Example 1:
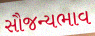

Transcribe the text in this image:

સૌજન્યભાવ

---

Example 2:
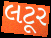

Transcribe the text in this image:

લટૂર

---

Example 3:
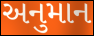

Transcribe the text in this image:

અનુમાન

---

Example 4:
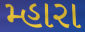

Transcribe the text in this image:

મ્હારા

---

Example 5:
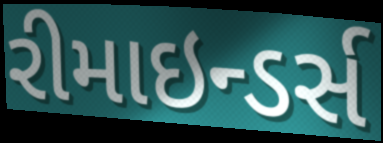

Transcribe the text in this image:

રીમાઇન્ડર્સ